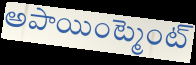
అపాయింట్మెంట్